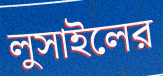
লুসাইলের